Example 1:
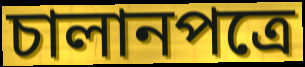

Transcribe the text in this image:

চালানপত্রে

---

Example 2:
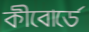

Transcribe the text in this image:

কীবোর্ডে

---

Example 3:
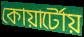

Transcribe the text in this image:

কোয়ার্টোয়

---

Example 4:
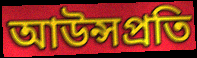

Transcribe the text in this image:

আউন্সপ্রতি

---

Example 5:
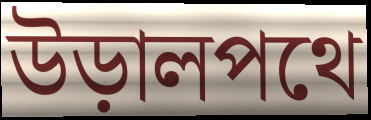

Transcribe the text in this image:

উড়ালপথে